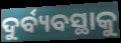
ଦୁର୍ବ୍ୟବସ୍ଥାକୁ